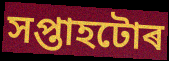
সপ্তাহটোৰ